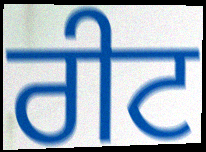
ਰੀਟ